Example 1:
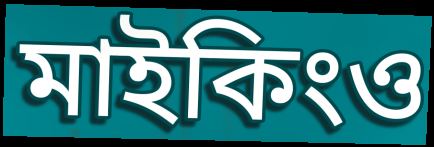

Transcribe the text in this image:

মাইকিংও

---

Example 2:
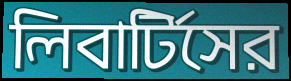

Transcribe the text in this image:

লিবার্টিসের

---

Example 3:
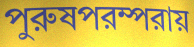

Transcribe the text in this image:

পুরুষপরম্পরায়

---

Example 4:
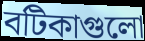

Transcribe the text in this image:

বটিকাগুলো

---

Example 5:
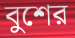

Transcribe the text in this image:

বুশের